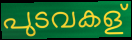
പുടവകള്